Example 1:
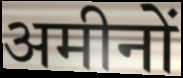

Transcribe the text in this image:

अमीनों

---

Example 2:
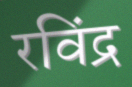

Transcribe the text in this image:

रविंद्र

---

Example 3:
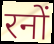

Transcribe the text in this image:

रनों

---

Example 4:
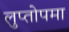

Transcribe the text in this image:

लुप्तोपमा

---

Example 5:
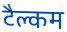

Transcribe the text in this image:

टैल्कम